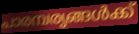
പാരമ്പര്യങ്ങൾക്ക്